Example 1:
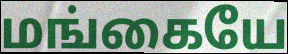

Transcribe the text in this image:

மங்கையே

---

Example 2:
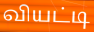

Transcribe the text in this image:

வியட்டி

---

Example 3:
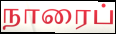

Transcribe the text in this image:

நாரைப்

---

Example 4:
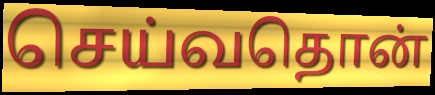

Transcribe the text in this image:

செய்வதொன்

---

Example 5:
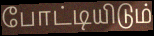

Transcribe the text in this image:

போட்டியிடும்